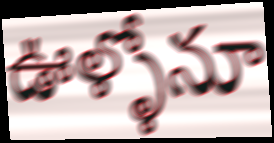
ఊళ్ళోనూ